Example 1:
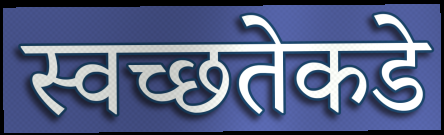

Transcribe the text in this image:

स्वच्छतेकडे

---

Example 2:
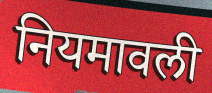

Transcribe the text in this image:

नियमावली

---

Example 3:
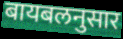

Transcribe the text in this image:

बायबलनुसार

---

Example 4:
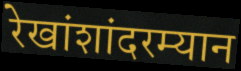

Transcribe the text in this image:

रेखांशांदरम्यान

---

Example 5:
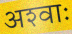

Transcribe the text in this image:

अश्वाः